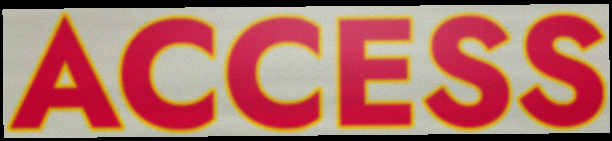
ACCESS